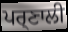
ਪਰ੍ਣਾਲੀ